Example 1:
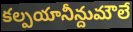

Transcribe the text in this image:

కల్పయానీన్దుమౌలే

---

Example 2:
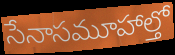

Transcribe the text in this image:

సేనాసమూహాల్తో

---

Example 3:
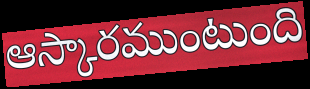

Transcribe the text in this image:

ఆస్కారముంటుంది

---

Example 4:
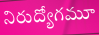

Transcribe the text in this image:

నిరుద్యోగమూ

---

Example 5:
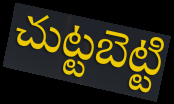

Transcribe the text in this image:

చుట్టబెట్టి